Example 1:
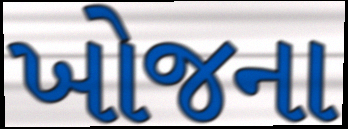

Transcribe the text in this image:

ખોજના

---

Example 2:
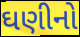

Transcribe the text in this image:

ઘણીનો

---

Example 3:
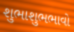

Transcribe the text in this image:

શુભાશુભભાવો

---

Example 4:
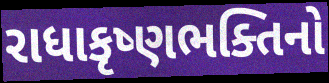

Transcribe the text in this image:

રાધાકૃષ્ણભક્તિનો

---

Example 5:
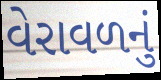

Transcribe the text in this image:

વેરાવળનું